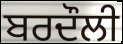
ਬਰਦੌਲੀ